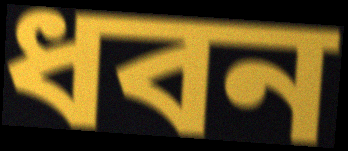
ধবন